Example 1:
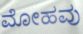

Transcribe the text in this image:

ಮೋಹವು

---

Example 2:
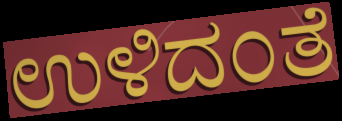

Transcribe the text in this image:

ಉಳಿದಂತೆ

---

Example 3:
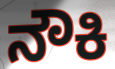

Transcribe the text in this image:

ನೌಕಿ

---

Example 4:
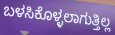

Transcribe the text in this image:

ಬಳಸಿಕೊಳ್ಳಲಾಗುತ್ತಿಲ್ಲ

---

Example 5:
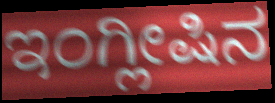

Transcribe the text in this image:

ಇಂಗ್ಲೀಷಿನ